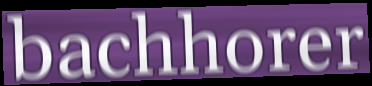
bachhorer